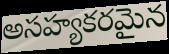
అసహ్యకరమైన